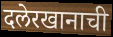
दलेरखानाची